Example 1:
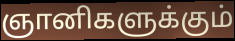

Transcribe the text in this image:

ஞானிகளுக்கும்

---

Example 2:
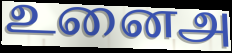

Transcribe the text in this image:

உனைஅ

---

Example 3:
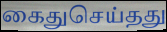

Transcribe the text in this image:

கைதுசெய்தது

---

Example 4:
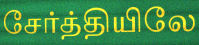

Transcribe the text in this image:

சேர்த்தியிலே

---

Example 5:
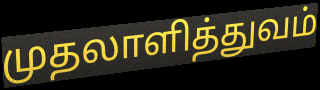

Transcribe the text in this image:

முதலாளித்துவம்